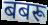
बबरू